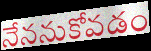
నేననుకోవడం